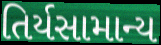
તિર્યસામાન્ય